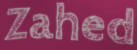
Zahed